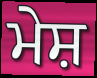
ਮੇਸ਼